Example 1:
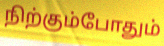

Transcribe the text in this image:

நிற்கும்போதும்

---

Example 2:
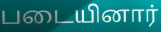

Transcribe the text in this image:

படையினார்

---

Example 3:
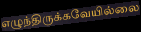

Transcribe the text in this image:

எழுந்திருக்கவேயில்லை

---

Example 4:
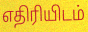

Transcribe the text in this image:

எதிரியிடம்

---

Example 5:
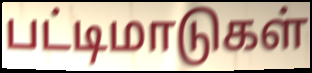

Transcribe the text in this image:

பட்டிமாடுகள்